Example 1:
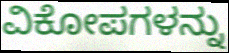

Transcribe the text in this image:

ವಿಕೋಪಗಳನ್ನು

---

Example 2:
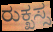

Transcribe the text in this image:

ರುಕ್ಖಸ್ಸ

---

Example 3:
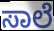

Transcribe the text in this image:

ಸಾಲೆ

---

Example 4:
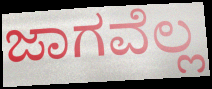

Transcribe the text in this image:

ಜಾಗವೆಲ್ಲ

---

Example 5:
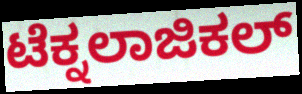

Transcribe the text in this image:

ಟೆಕ್ನಲಾಜಿಕಲ್